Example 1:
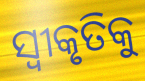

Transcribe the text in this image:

ସ୍ୱୀକୃତିକୁ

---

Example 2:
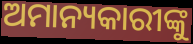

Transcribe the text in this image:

ଅମାନ୍ୟକାରୀଙ୍କୁ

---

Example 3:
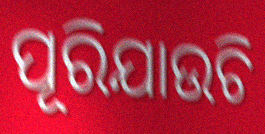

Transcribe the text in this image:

ପୂରିଯାଉଚି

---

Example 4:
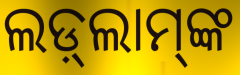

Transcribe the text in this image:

ଲଡ଼୍‍ଲାମ୍‍ଙ୍କ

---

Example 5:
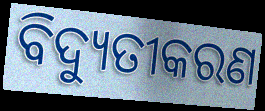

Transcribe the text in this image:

ବିଦ୍ୟୁତୀକରଣ